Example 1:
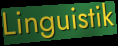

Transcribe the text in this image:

Linguistik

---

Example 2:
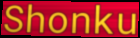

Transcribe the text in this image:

Shonku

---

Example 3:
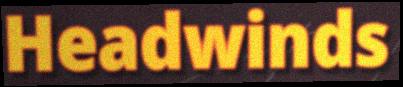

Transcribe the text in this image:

Headwinds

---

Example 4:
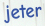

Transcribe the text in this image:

jeter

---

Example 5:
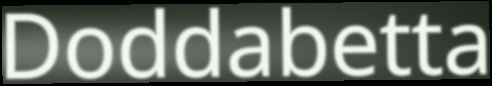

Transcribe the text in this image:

Doddabetta